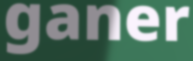
ganer